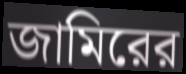
জামিরের